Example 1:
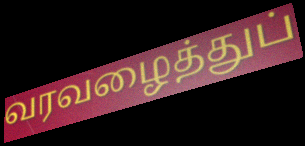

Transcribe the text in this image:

வரவழைத்துப்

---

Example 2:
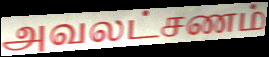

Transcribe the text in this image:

அவலட்சணம்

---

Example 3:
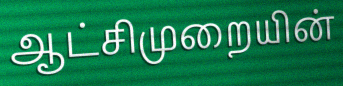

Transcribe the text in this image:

ஆட்சிமுறையின்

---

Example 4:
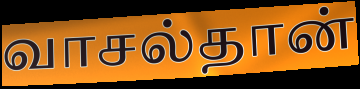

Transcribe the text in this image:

வாசல்தான்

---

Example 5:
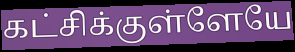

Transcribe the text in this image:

கட்சிக்குள்ளேயே